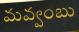
మవ్వంబు